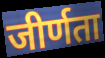
जीर्णता